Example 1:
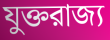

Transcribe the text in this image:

যুক্তরাজ্য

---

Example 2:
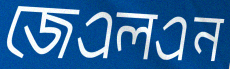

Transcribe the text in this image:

জেএলএন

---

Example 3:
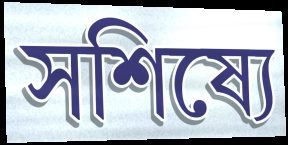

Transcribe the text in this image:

সশিষ্যে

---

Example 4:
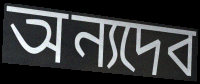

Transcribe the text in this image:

অন্যদেব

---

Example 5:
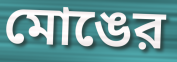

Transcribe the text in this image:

মোঙের